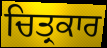
ਚਿਤ੍ਰਕਾਰ